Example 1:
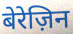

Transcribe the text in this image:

बेरेज़िन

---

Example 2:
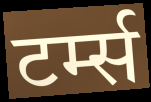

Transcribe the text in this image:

टर्म्स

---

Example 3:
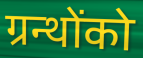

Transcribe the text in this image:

ग्रन्थोंको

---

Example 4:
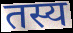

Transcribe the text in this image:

तस्य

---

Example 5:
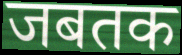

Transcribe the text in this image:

जबतक